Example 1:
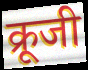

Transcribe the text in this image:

क्रूजी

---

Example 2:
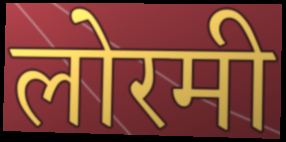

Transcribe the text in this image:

लोरमी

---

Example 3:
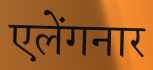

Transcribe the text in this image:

एलेंगनार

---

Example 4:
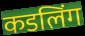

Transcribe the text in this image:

कडलिंग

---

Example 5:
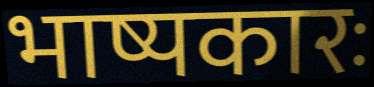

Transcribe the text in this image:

भाष्यकारः